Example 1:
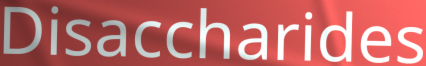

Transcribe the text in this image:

Disaccharides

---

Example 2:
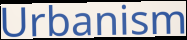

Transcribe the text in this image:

Urbanism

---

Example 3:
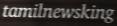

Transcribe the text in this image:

tamilnewsking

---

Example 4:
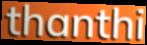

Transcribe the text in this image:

thanthi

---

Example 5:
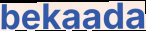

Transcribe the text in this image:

bekaada